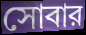
সোবার